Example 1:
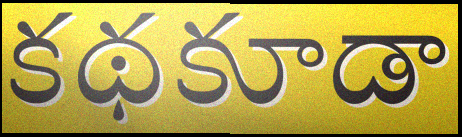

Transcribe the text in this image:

కథకూడా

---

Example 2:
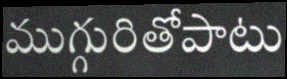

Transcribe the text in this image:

ముగ్గురితోపాటు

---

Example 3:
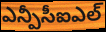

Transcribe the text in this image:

ఎన్పీసీఐఎల్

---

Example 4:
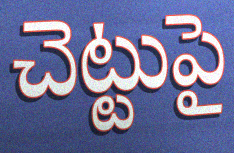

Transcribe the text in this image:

చెట్టుపై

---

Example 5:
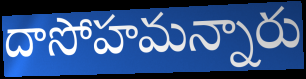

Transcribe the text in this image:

దాసోహమన్నారు